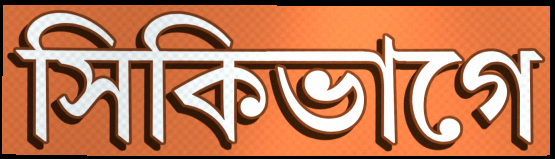
সিকিভাগে